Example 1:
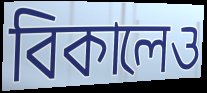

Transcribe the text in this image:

বিকালেও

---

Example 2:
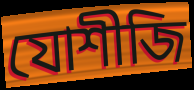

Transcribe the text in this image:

যোশীজি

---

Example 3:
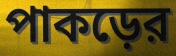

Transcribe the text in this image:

পাকড়ের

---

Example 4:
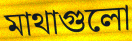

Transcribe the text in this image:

মাথাগুলো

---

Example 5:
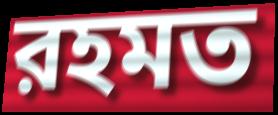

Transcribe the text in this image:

রহমত